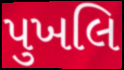
પુખલિ